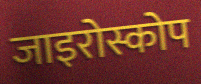
जाइरोस्कोप